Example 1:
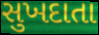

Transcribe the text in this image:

સુખદાતા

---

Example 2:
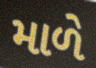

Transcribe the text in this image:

માળે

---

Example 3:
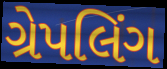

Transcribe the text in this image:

ગ્રેપલિંગ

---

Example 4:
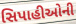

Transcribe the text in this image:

સિપાહીઓની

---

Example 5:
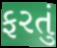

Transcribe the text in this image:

ફરતું